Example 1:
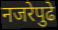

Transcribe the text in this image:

नजरेपुढे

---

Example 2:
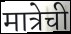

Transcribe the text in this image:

मात्रेची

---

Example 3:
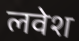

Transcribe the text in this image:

लवेश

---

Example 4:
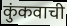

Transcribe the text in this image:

कुंकवाची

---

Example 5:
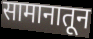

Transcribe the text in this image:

सामानातून